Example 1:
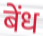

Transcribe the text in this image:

बेंध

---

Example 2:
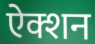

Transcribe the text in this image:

ऐक्‍शन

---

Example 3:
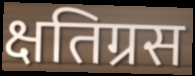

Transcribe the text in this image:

क्षतिग्रस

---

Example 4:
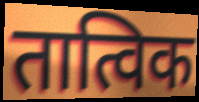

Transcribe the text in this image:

तात्विक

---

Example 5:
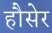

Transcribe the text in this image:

हौसेर